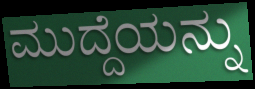
ಮುದ್ದೆಯನ್ನು